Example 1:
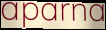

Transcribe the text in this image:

aparna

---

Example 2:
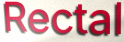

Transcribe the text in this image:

Rectal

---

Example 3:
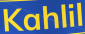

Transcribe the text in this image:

Kahlil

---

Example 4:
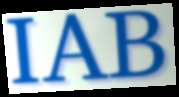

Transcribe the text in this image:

IAB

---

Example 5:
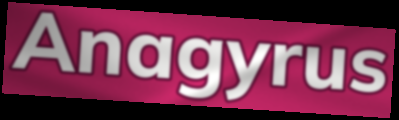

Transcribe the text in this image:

Anagyrus